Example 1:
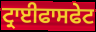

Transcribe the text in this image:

ਟ੍ਰਾਈਫਾਸਫੇਟ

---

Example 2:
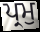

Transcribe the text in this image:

ਪ੍ਰਮੁ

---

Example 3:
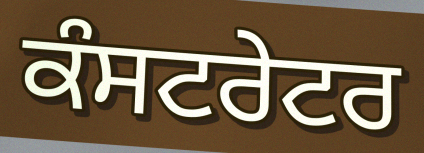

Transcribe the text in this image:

ਕੰਸਟਰੇਟਰ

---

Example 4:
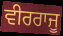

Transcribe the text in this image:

ਵੀਰਰਾਜੂ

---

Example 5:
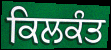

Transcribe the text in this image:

ਕਿਲਕੰਤ